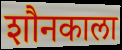
शौनकाला